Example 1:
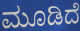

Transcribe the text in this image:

ಮೂಡಿದೆ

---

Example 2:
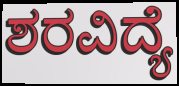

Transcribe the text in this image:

ಶರವಿದ್ಯೆ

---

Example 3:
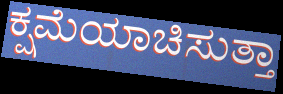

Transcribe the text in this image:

ಕ್ಷಮೆಯಾಚಿಸುತ್ತಾ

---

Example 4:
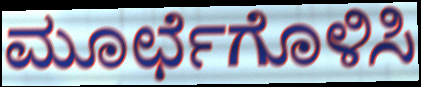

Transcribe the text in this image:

ಮೂರ್ಛೆಗೊಳಿಸಿ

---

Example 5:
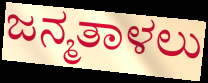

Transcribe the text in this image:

ಜನ್ಮತಾಳಲು